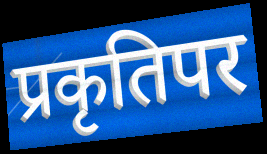
प्रकृतिपर